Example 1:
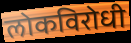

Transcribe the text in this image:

लोकविरोधी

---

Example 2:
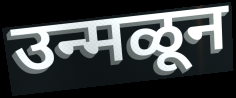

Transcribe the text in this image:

उन्मळून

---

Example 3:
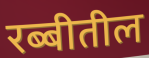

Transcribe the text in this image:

रब्बीतील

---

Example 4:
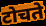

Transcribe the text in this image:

टोचते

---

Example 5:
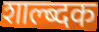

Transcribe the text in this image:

शाल्ब्दक